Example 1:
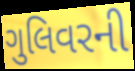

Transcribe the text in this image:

ગુલિવરની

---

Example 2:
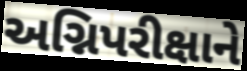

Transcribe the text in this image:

અગ્નિપરીક્ષાને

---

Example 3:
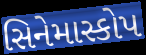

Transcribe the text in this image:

સિનેમાસ્કોપ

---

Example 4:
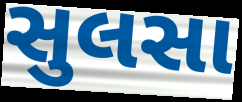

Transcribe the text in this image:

સુલસા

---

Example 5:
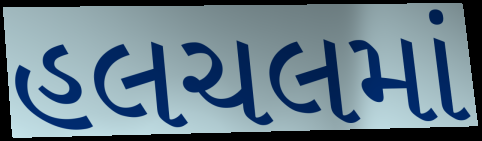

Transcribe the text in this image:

હલચલમાં